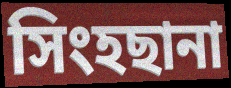
সিংহছানা